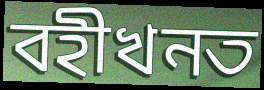
বহীখনত